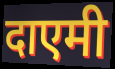
दाएमी